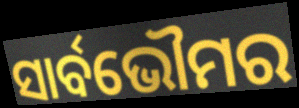
ସାର୍ବଭୌମର